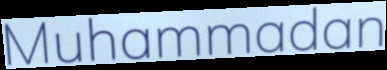
Muhammadan